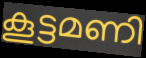
കൂട്ടമണി